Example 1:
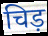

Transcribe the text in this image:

चिड़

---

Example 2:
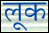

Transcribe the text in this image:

लूक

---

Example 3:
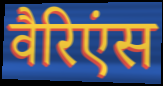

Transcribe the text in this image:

वैरिएंस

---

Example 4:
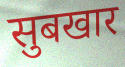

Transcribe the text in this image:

सुबखार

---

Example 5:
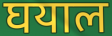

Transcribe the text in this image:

घयाल